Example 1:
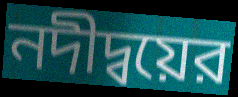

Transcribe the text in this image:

নদীদ্বয়ের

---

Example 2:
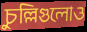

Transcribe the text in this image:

চুল্লিগুলোও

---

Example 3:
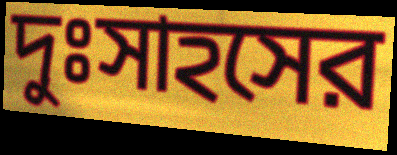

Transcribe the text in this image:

দুঃসাহসের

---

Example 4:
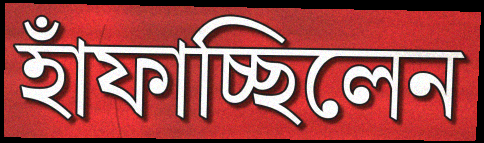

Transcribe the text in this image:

হাঁফাচ্ছিলেন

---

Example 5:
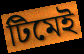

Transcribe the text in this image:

টিমেই